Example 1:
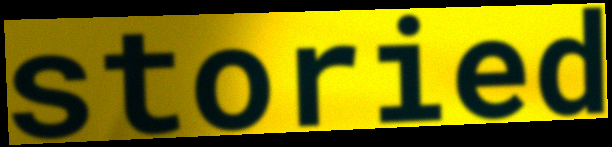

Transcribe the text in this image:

storied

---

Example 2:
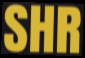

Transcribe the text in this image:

SHR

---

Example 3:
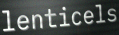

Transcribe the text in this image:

lenticels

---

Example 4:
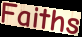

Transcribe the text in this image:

Faiths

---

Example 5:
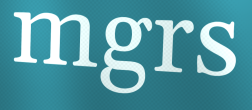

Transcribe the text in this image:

mgrs